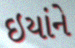
ઇયાંને